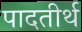
पादतीर्थ